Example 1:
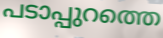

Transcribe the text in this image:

പടാപ്പുറത്തെ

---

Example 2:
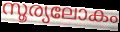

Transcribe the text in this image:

സൂര്യലോകം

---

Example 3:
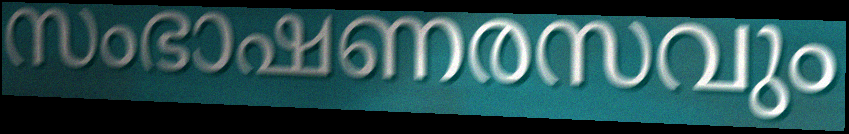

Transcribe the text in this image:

സംഭാഷണരസവും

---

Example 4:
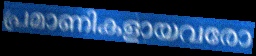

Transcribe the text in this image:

പ്രമാണികളായവരോ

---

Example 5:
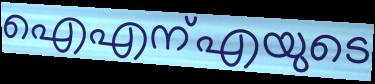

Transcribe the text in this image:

ഐഎന്എയുടെ